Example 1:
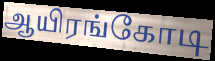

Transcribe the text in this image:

ஆயிரங்கோடி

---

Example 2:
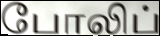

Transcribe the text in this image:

போலிப்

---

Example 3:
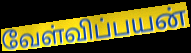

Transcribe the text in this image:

வேள்விப்பயன்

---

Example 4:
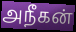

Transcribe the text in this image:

அநீகன்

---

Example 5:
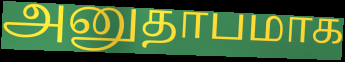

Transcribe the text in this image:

அனுதாபமாக